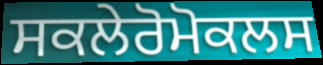
ਸਕਲੇਰੋਮੋਕਲਸ